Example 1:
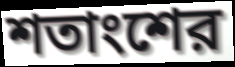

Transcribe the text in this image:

শতাংশের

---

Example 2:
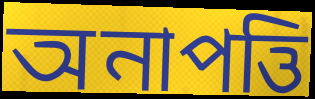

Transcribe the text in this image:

অনাপত্তি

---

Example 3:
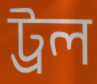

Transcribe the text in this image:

ট্রল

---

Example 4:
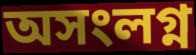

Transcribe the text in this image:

অসংলগ্ন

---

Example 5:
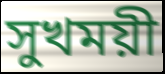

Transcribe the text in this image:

সুখময়ী